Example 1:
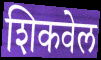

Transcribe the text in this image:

शिकवेल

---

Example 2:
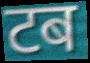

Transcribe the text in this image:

टब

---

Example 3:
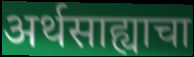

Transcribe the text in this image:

अर्थसाह्याचा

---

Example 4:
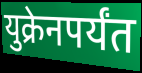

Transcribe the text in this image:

युक्रेनपर्यंत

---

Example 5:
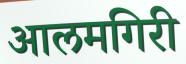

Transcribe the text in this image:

आलमगिरी